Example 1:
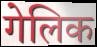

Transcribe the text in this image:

गेलिक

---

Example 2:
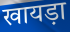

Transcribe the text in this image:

खायड़ा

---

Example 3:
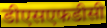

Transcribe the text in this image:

डीएसएफडीसी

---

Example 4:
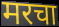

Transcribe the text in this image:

मरचा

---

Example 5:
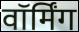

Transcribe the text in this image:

वॉर्मिंग